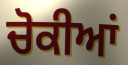
ਚੋਕੀਆਂ